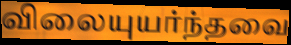
விலையுயர்ந்தவை